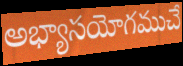
అభ్యాసయోగముచే